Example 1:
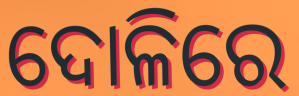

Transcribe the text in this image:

ଦୋଳିରେ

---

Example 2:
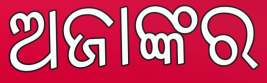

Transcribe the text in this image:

ଅଜାଙ୍କର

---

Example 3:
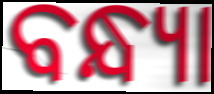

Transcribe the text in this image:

ବନ୍ଧ୍ୟା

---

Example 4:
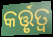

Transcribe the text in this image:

କର୍ତ୍ତୃତ୍ଵ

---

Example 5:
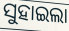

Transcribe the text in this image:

ସୁହାଇଲା